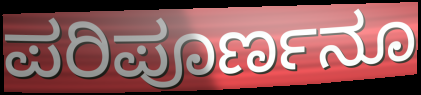
ಪರಿಪೂರ್ಣನೂ